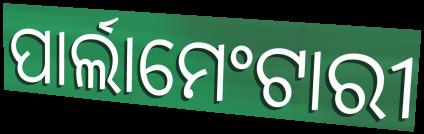
ପାର୍ଲାମେଂଟାରୀ